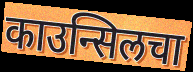
काउन्सिलचा